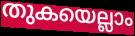
തുകയെല്ലാം